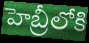
హెబ్రీలోకి